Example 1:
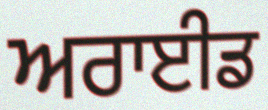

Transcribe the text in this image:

ਅਰਾਈਡ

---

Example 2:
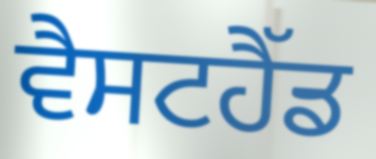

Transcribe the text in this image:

ਵੈਸਟਹੈੱਡ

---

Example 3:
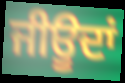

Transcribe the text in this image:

ਜੀਊਦਾਂ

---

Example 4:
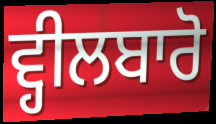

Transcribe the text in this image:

ਵ੍ਹੀਲਬਾਰੋ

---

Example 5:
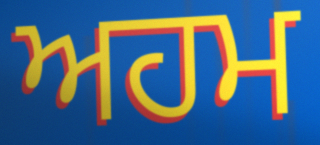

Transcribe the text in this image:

ਅਹਮ